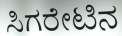
ಸಿಗರೇಟಿನ